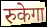
रुकेगा